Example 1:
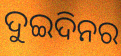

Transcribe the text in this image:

ଦୁଇଦିନର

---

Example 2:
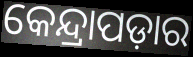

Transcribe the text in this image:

କେନ୍ଦ୍ରାପଡ଼ାର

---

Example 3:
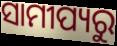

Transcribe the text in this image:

ସାମୀପ୍ୟରୁ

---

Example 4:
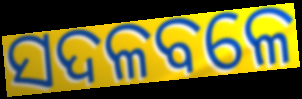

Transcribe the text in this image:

ସଦଳବଳେ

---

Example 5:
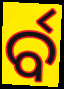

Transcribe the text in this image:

ର୍ବ